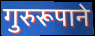
गुरुरूपाने